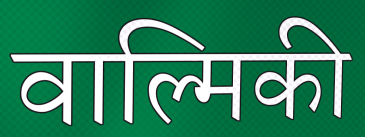
वाल्मिकी